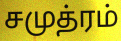
சமுத்ரம்